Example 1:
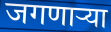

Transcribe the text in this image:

जगणार्‍या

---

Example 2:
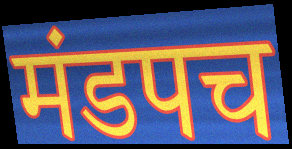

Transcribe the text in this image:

मंडपच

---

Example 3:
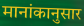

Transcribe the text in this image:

मानांकानुसार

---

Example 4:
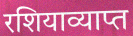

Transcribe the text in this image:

रशियाव्याप्त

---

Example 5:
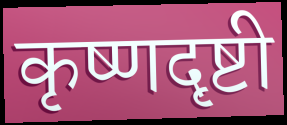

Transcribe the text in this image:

कृष्णदृष्टी